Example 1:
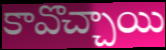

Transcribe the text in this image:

కావొచ్చాయి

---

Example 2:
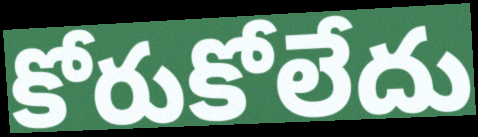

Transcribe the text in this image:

కోరుకోలేదు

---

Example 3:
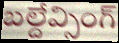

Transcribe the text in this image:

బల్దేవ్సింగ్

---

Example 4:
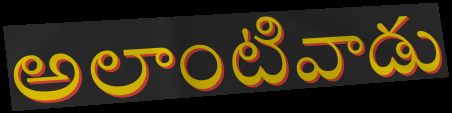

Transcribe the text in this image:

అలాంటివాడు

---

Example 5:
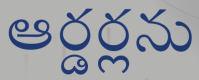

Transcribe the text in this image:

ఆర్డర్లను